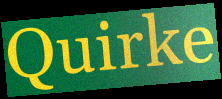
Quirke